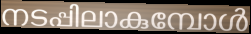
നടപ്പിലാകുമ്പോൾ